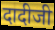
दादीजी